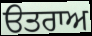
ੳਤਰਾਅ